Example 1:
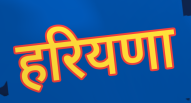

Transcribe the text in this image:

हरियणा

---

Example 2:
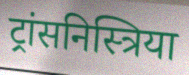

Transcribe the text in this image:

ट्रांसनिस्त्रिया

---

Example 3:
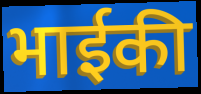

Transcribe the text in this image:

भाईकी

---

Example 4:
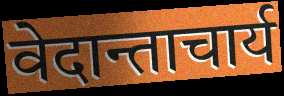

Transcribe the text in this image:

वेदान्ताचार्य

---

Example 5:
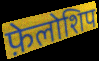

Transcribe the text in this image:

फ़ेलोशिप